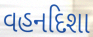
વહનદિશા